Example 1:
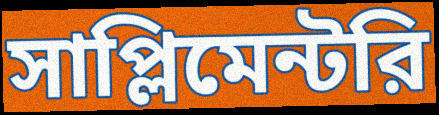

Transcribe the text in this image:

সাপ্লিমেন্টরি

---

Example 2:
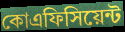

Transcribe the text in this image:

কোএফিসিয়েন্ট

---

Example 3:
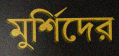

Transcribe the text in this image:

মুর্শিদের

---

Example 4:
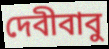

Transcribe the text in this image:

দেবীবাবু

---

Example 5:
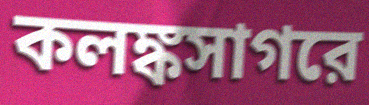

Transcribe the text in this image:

কলঙ্কসাগরে